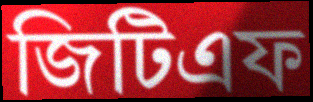
জিটিএফ